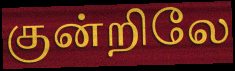
குன்றிலே